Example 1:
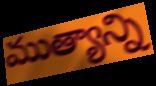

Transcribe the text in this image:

ముత్యాన్ని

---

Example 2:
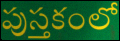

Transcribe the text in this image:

పుస్తకంలో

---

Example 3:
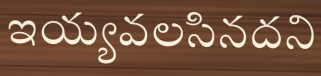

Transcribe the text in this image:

ఇయ్యవలసినదని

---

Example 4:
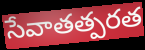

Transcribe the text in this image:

సేవాతత్పరత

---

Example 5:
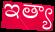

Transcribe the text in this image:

ఇత్యా